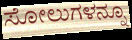
ಸೋಲುಗಳನ್ನೂ